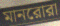
মানরোরা